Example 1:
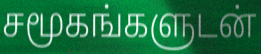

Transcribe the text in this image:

சமூகங்களுடன்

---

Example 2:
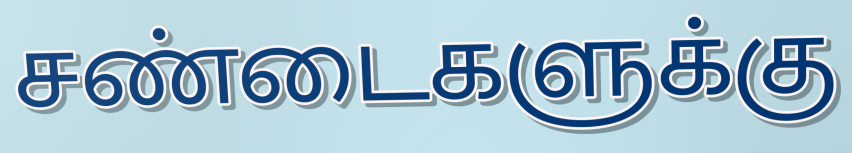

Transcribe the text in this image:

சண்டைகளுக்கு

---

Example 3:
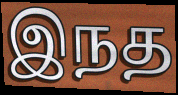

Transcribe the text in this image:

இநத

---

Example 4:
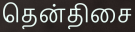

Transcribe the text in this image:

தென்திசை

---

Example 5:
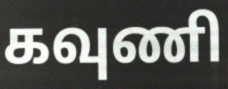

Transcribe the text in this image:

கவுணி